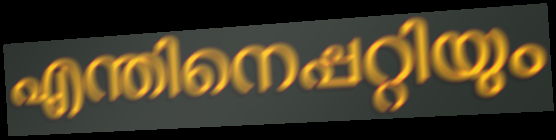
എന്തിനെപ്പറ്റിയും